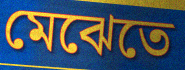
মেঝেতে